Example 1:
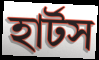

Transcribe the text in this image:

হার্টস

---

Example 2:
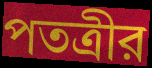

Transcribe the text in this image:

পতত্রীর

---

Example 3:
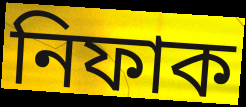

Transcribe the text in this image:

নিফাক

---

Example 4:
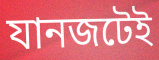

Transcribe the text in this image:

যানজটেই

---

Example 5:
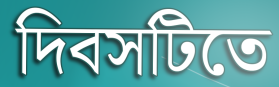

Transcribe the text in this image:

দিবসটিতে